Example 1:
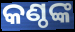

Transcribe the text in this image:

କଣ୍ଠଙ୍କ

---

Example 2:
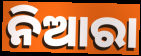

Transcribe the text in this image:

ନିଆରା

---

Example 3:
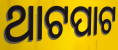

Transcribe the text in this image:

ଥାଟପାଟ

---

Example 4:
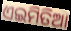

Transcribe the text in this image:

ଏଇମିତିଆ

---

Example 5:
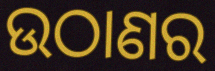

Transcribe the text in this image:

ଉଠାଣର